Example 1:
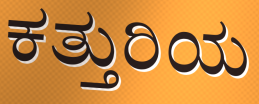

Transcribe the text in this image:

ಕತ್ತುರಿಯ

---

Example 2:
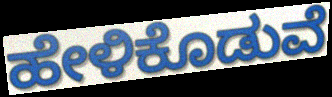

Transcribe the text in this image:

ಹೇಳಿಕೊಡುವೆ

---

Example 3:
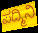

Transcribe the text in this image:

ಪದ್ಮಿನಿ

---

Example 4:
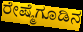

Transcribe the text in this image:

ರೇಷ್ಮೆಗೂಡಿನ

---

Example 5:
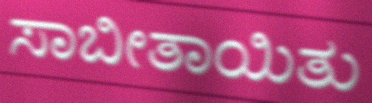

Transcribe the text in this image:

ಸಾಬೀತಾಯಿತು